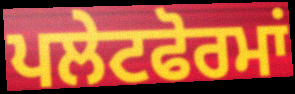
ਪਲੇਟਫੋਰਮਾਂ